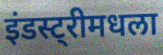
इंडस्ट्रीमधला